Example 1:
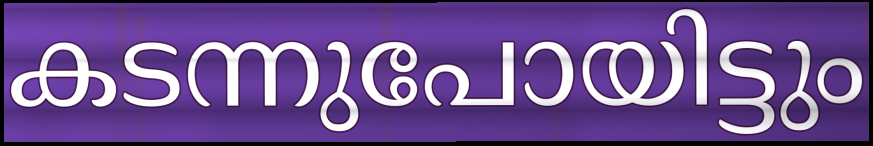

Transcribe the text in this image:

കടന്നുപോയിട്ടും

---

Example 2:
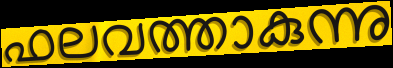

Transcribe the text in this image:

ഫലവത്താകുന്നു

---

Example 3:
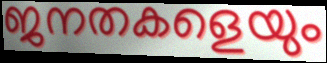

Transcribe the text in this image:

ജനതകളെയും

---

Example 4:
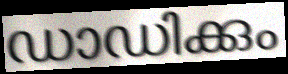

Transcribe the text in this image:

ഡാഡിക്കും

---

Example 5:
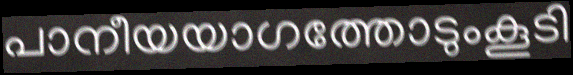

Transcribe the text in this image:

പാനീയയാഗത്തോടുംകൂടി